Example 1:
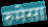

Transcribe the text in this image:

रुमेसा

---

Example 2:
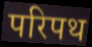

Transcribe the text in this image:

परिपथ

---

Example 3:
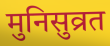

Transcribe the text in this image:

मुनिसुव्रत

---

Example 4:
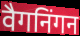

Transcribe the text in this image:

वैगनिंगन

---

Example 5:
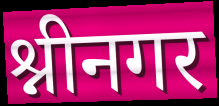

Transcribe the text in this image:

श्नीनगर